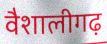
वैशालीगढ़